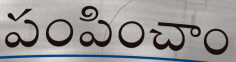
పంపించాం